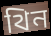
থিন